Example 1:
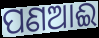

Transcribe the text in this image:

ପଣଆଈ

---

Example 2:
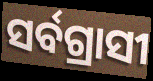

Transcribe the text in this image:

ସର୍ବଗ୍ରାସୀ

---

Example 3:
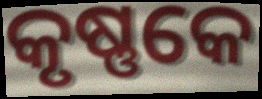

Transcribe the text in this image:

କୃଷ୍ଣକେ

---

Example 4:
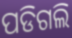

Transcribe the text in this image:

ପଡିଗଲି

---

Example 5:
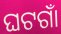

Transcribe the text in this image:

ଘଟଗାଁ